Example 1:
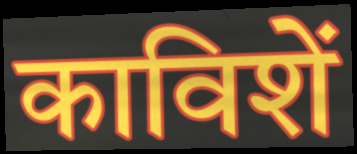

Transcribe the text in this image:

काविशें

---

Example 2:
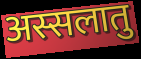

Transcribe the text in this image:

अस्सलातु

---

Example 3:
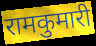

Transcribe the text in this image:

रामकुमारी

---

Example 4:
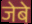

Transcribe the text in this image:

जेबे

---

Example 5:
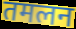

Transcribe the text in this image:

तमलन